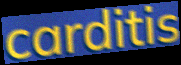
carditis